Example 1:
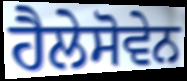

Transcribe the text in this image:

ਹੈਲੇਸੋਵੇਨ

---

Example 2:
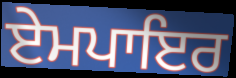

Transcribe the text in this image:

ਏਮਪਾਇਰ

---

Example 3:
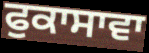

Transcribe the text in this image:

ਫੁਕਾਸਾਵਾ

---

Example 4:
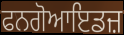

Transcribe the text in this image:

ਫਨਗੋਆਇਡਜ਼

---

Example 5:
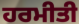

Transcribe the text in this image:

ਹਰਮੀਤੀ